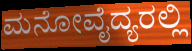
ಮನೋವೈದ್ಯರಲ್ಲಿ